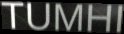
TUMHI